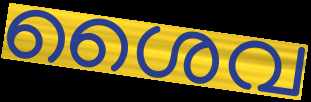
ശൈവ